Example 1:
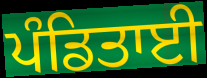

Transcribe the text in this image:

ਪੰਡਿਤਾਈ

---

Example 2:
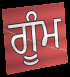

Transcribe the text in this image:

ਗੂੰਮ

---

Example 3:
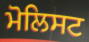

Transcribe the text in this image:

ਮੋਲਿਸਟ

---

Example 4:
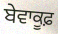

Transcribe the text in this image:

ਬੇਵਾਕੂਫ਼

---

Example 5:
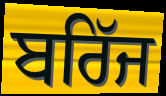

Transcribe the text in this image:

ਬਰਿੱਜ